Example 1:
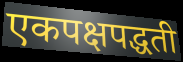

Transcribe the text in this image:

एकपक्षपद्धती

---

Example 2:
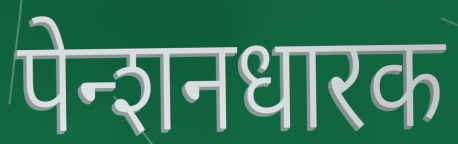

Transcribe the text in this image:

पेन्शनधारक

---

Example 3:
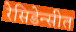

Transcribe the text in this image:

रेसिडेन्सीत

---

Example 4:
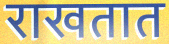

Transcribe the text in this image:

राखतात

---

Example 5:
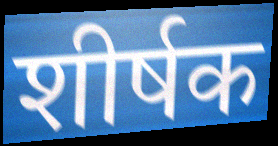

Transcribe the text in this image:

शीर्षक